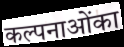
कल्पनाओंका